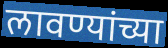
लावण्यांच्या